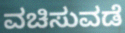
ವಚಿಸುವಡೆ